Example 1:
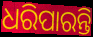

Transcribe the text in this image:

ଧରିପାରନ୍ତି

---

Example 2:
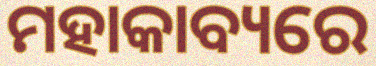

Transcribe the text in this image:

ମହାକାବ୍ୟରେ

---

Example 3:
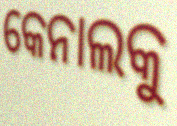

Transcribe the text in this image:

କେନାଲକୁ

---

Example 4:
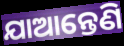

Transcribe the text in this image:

ଯାଆନ୍ତେଣି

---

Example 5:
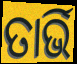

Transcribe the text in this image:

ତାର୍ଭି